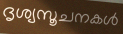
ദൃശ്യസൂചനകൾ